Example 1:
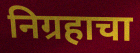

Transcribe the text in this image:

निग्रहाचा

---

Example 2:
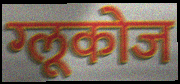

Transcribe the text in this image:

ग्लूकोज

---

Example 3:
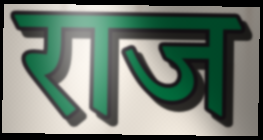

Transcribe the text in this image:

राज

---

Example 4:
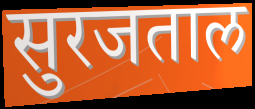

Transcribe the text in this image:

सुरजताल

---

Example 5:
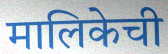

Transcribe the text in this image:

मालिकेची